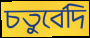
চতুর্বেদি